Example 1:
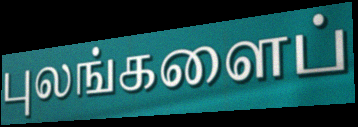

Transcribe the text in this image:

புலங்களைப்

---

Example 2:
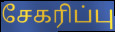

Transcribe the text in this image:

சேகரிப்பு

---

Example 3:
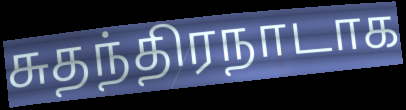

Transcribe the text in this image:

சுதந்திரநாடாக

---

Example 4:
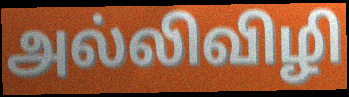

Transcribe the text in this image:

அல்லிவிழி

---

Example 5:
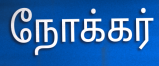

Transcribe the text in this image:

நோக்கர்